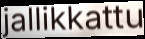
jallikkattu